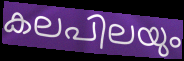
കലപിലയും